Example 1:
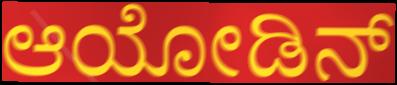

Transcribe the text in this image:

ಆಯೋಡಿನ್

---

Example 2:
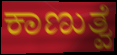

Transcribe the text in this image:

ಕಾಣುತ್ವೆ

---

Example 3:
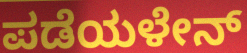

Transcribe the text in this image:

ಪಡೆಯಳೇನ್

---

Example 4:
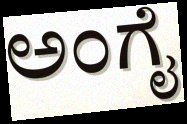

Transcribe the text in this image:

ಅಂಗೈ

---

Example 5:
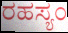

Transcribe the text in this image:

ರಹಸ್ಯಂ